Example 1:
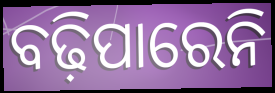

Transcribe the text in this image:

ବଢ଼ିପାରେନି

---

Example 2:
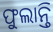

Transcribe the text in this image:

ଫୁଲାନ୍ତି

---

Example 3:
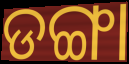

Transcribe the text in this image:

ଡଙ୍ଗା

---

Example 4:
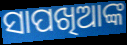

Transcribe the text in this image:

ସାପଖିଆଙ୍କ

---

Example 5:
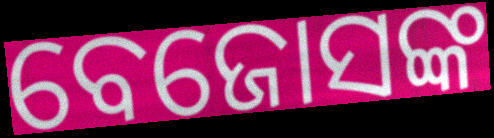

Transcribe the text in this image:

ବେଜୋସଙ୍କ